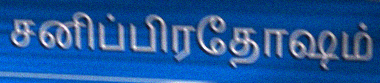
சனிப்பிரதோஷம்